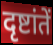
दृष्टांतें